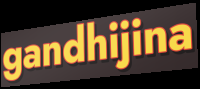
gandhijina